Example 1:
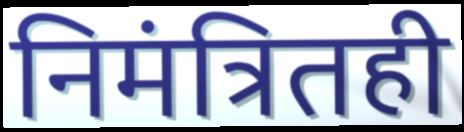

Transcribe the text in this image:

निमंत्रितही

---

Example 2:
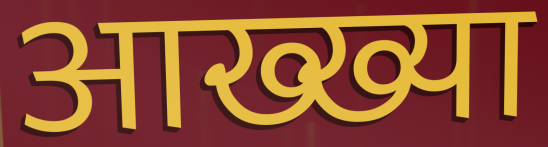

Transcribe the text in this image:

आख्ख्या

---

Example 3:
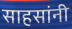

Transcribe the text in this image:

साहसांनी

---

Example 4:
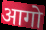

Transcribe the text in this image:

आगो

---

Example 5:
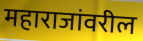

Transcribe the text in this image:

महाराजांवरील